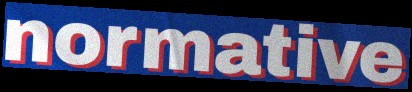
normative